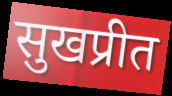
सुखप्रीत